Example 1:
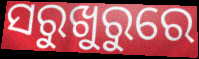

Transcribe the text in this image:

ସରୁଖୁରୁରେ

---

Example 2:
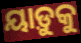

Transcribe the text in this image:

ୟାଡ଼ୁକୁ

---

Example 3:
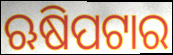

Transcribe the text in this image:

ଋଷିପଟାର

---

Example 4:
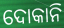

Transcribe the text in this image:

ଦୋକାନି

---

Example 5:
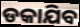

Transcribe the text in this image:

ଡକାଯିବ